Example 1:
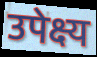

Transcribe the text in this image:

उपेक्ष्य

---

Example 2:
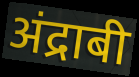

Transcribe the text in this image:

अंद्राबी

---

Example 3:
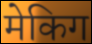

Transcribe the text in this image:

मेकिग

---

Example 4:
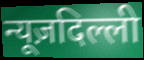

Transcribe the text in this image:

न्यूज़दिल्ली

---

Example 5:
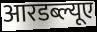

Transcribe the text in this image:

आरडब्ल्यूए